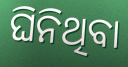
ଘିନିଥିବା